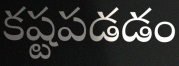
కష్టపడడం